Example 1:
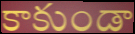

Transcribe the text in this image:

కాకుండా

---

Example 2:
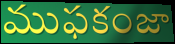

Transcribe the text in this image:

ముఫకంజా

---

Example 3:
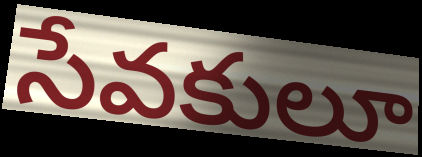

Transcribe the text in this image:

సేవకులూ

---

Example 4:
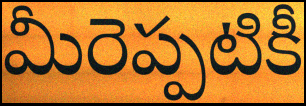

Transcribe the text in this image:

మీరెప్పటికీ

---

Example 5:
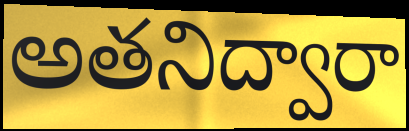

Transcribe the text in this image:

అతనిద్వారా